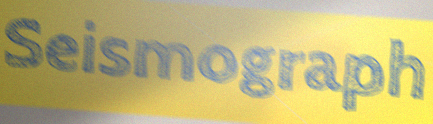
Seismograph